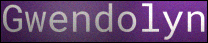
Gwendolyn